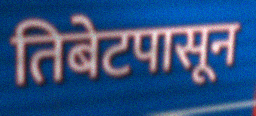
तिबेटपासून